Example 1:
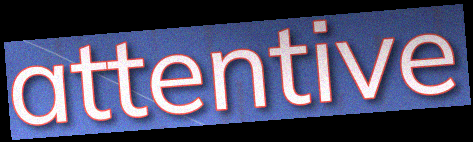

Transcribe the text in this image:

attentive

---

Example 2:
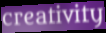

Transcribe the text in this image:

creativity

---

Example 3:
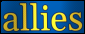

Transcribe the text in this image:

allies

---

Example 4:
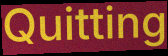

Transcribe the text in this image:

Quitting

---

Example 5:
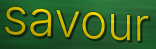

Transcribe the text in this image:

savour